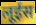
लूईस